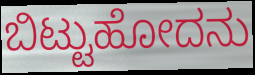
ಬಿಟ್ಟುಹೋದನು